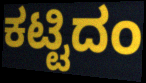
ಕಟ್ಟಿದಂ